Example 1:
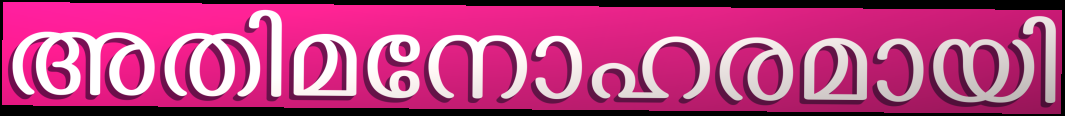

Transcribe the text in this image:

അതിമനോഹരമായി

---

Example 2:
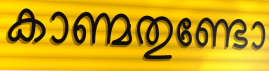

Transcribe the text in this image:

കാണ്മതുണ്ടോ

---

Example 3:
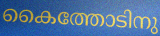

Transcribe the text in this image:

കൈത്തോടിനു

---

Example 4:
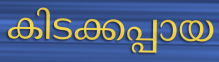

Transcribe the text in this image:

കിടക്കപ്പായ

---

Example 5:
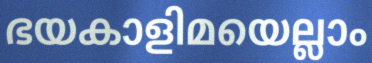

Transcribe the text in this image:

ഭയകാളിമയെല്ലാം